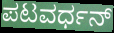
ಪಟವರ್ಧನ್